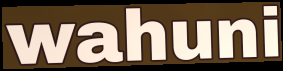
wahuni